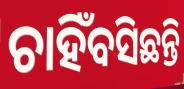
ଚାହିଁବସିଛନ୍ତି